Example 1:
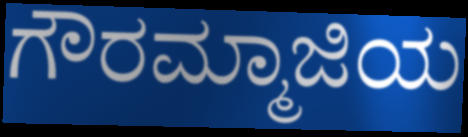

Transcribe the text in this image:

ಗೌರಮ್ಮಾಜಿಯ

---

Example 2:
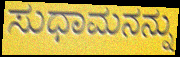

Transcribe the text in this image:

ಸುಧಾಮನನ್ನು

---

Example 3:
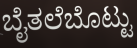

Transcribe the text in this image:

ಬೈತಲೆಬೊಟ್ಟು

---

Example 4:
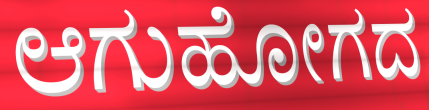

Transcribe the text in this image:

ಆಗುಹೋಗದ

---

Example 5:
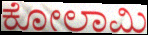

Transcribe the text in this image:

ಕೋಲಾಮಿ